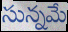
సున్నమే